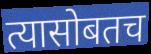
त्यासोबतच